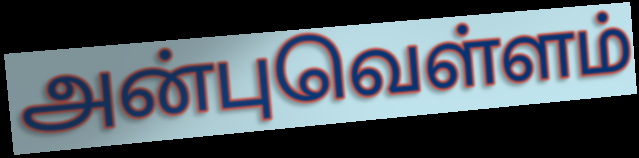
அன்புவெள்ளம்